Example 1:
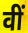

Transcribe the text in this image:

वीं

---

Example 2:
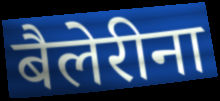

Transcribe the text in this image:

बैलेरीना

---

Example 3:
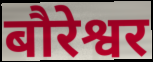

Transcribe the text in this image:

बौरेश्वर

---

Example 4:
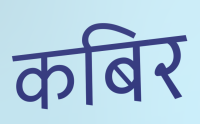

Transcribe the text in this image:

कबिर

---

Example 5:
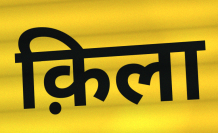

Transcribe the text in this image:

क़िला